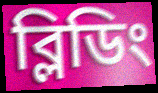
ব্লিডিং